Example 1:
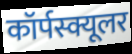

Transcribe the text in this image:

कॉर्पस्क्यूलर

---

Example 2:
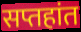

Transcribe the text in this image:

सप्तहांत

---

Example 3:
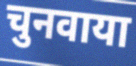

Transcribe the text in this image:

चुनवाया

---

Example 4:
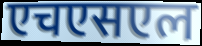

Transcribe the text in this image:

एचएसएल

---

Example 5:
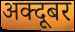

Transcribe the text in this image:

अक्दूबर